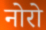
नोरो